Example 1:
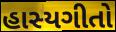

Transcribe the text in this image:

હાસ્યગીતો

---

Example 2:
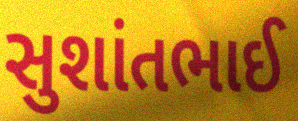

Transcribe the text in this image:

સુશાંતભાઈ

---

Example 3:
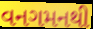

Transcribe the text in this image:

વનગમનથી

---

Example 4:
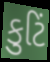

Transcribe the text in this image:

કુટિં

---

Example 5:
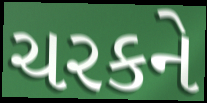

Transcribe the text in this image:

ચરકને